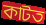
কাটত